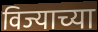
विज्याच्या